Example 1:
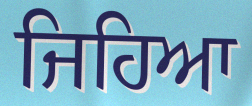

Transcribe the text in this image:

ਜਿਹਿਆ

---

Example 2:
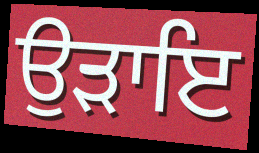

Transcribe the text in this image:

ਉੜਾਇ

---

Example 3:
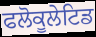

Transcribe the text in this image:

ਫਲੋਕੂਲੇਟਿਡ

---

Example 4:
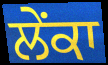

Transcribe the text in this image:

ਲੇਂਕਾ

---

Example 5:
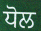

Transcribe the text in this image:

ਧੋਲ